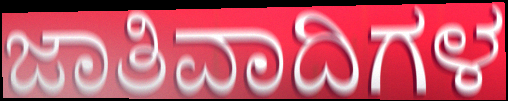
ಜಾತಿವಾದಿಗಳ